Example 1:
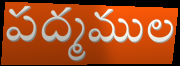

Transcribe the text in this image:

పద్మముల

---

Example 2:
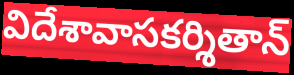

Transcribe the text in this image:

విదేశావాసకర్శితాన్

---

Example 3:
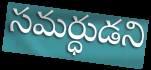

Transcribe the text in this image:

సమర్ధుడని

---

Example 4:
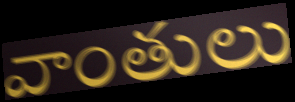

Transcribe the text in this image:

వాంతులు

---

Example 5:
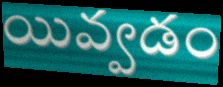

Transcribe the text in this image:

యివ్వడం